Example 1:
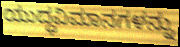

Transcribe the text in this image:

ಯುದ್ಧವಿಮಾನಗಳನ್ನು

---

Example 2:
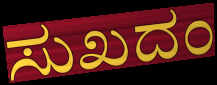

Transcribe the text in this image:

ಸುಖದಂ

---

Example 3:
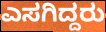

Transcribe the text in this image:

ಎಸಗಿದ್ದರು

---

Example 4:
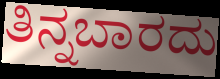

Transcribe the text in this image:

ತಿನ್ನಬಾರದು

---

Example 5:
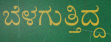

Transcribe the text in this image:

ಬೆಳಗುತ್ತಿದ್ದ